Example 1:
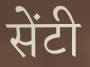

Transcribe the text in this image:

सेंटी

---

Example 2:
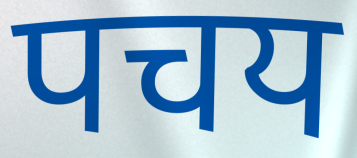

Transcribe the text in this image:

पचय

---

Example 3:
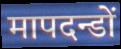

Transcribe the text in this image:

मापदन्डों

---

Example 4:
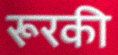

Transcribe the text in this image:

रूरकी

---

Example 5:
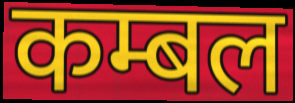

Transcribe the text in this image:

कम्बल